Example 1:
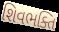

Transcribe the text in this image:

શિવભક્તિ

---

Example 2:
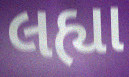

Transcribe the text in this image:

લહ્યા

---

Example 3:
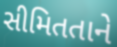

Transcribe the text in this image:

સીમિતતાને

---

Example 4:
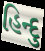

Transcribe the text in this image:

હિન્દુ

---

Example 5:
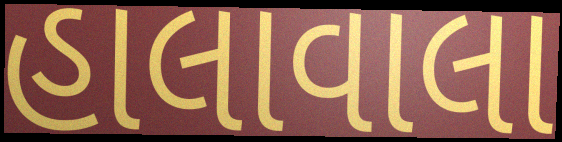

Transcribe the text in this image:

હાલાવાલા